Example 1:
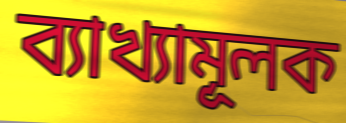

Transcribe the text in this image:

ব্যাখ্যামূলক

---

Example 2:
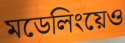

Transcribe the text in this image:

মডেলিংয়েও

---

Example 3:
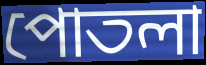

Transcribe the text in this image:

পোতলা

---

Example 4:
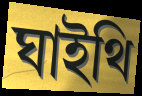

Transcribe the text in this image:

ঘাইথি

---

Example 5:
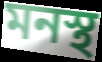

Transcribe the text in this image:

মনস্থ